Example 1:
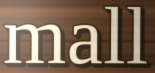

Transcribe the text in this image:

mall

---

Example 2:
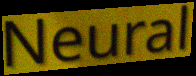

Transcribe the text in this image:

Neural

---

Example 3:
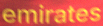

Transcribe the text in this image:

emirates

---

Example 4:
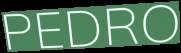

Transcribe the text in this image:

PEDRO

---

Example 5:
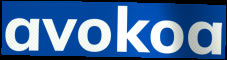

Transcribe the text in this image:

avokoa